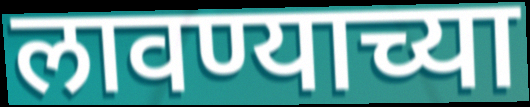
लावण्याच्या